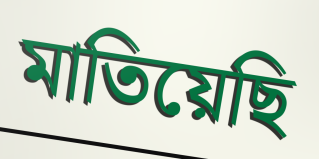
মাতিয়েছি